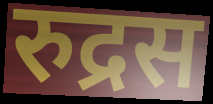
रुद्रस